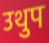
उथुप